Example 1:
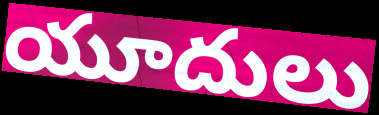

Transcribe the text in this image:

యూదులు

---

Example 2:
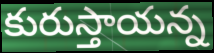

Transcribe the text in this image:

కురుస్తాయన్న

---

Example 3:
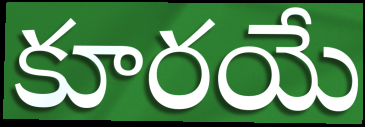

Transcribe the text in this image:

కూరయే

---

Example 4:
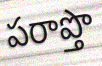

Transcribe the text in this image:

పరాప్తొ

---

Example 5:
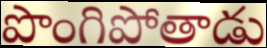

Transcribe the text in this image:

పొంగిపోతాడు